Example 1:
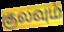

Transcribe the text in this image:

குலவும்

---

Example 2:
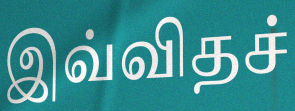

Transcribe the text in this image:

இவ்விதச்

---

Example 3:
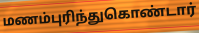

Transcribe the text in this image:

மணம்புரிந்துகொண்டார்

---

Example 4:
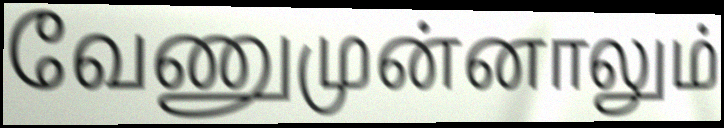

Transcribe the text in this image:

வேணுமுன்னாலும்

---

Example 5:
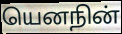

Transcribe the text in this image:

யெனநின்